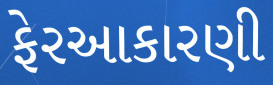
ફેરઆકારણી